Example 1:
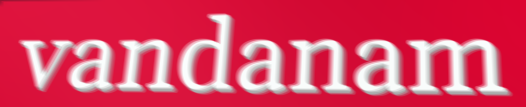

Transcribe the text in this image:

vandanam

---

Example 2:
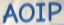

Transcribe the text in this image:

AOIP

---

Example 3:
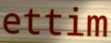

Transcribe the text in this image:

ettim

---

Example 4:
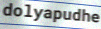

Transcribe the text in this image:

dolyapudhe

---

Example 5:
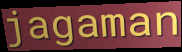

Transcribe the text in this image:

jagaman